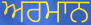
ਅਰਮਾਨ